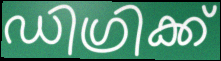
ഡിഗ്രിക്ക്